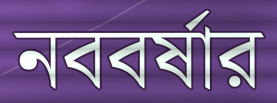
নববর্ষার